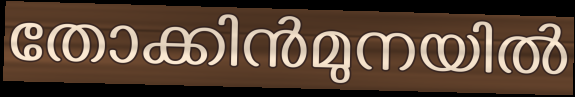
തോക്കിൻമുനയിൽ